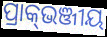
ପ୍ରାକ୍‌ଭଞ୍ଜୀୟ